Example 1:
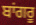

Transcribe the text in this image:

ਬਾਂਗਰੂ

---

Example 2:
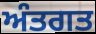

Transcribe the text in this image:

ਅੰਤਗਤ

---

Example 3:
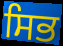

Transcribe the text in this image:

ਸਿਭ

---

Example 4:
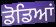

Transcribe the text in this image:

ਡੋਡਿਆਂ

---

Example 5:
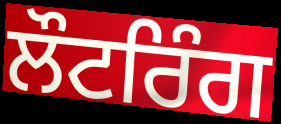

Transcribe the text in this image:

ਲੌਟਰਿੰਗ